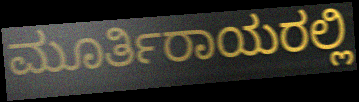
ಮೂರ್ತಿರಾಯರಲ್ಲಿ